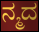
ನ್ಮದ